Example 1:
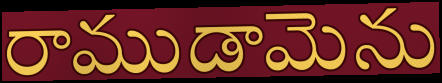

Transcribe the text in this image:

రాముడామెను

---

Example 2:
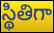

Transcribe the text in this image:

స్థితిగా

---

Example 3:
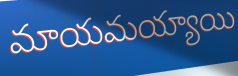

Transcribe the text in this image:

మాయమయ్యాయి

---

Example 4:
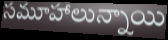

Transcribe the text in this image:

సమూహాలున్నాయి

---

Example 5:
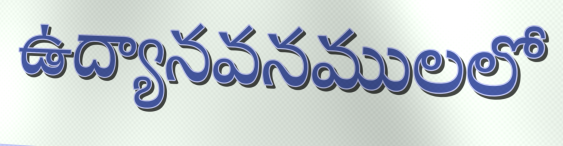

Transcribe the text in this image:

ఉద్యానవనములలో